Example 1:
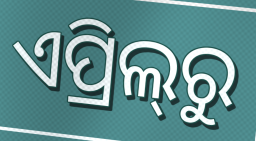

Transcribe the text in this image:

ଏପ୍ରିଲ୍‍ରୁ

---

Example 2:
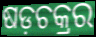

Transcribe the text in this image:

ଷଡ଼ଚକ୍ରର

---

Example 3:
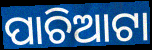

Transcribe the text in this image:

ପାଚିଆଟା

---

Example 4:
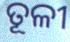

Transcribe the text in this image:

ତୂଳୀ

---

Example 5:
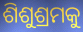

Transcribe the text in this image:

ଶିଶୁଶ୍ରମକୁ